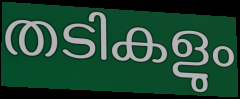
തടികളും